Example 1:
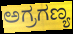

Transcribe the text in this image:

ಅಗ್ರಗಣ್ಯ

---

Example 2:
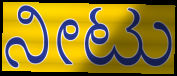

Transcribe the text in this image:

ನೀಟು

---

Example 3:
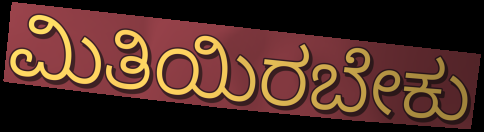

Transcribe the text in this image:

ಮಿತಿಯಿರಬೇಕು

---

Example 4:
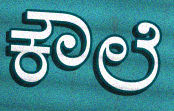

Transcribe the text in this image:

ಕೌಲೆ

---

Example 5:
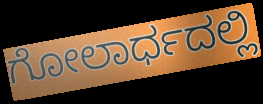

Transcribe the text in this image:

ಗೋಲಾರ್ಧದಲ್ಲಿ